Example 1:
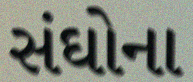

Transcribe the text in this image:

સંઘોના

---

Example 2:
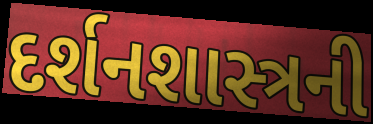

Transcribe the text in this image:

દર્શનશાસ્ત્રની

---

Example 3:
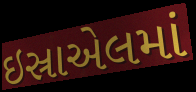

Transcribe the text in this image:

ઇસ્રાએલમાં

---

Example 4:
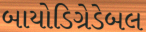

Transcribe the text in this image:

બાયોડિગ્રેડેબલ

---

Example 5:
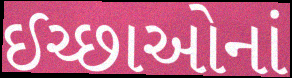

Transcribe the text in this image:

ઈચ્છાઓનાં